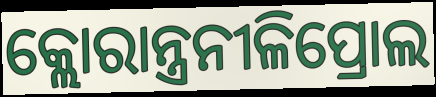
କ୍ଲୋରାନ୍ତ୍ରନୀଳିପ୍ରୋଲ